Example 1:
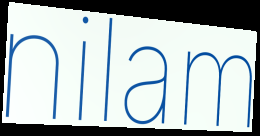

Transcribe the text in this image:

nilam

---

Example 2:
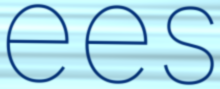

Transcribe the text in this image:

ees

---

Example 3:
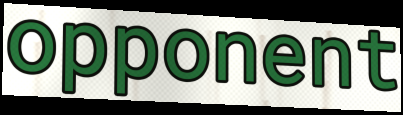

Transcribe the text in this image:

opponent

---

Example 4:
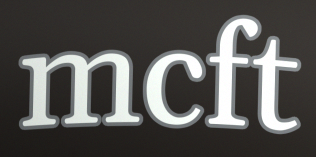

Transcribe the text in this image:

mcft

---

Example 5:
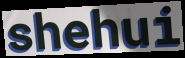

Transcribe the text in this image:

shehui